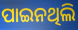
ପାଇନଥିଲି